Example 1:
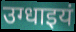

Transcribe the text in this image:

उग्धाइयं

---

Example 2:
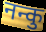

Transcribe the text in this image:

नन्कु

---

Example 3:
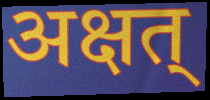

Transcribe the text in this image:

अक्षत्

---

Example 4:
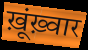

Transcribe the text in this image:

ख़ूंख़्वार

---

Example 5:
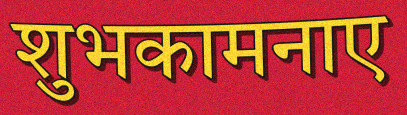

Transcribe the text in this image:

शुभकामनाए